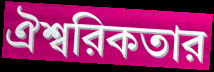
ঐশ্বরিকতার